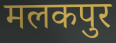
मलकपुर